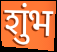
शुंभ